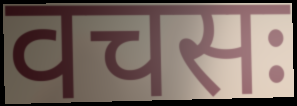
वचसः